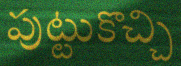
పుట్టుకొచ్చి